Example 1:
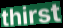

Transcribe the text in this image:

thirst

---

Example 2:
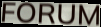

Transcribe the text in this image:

FORUM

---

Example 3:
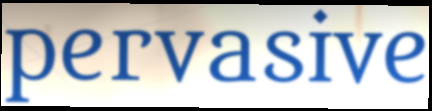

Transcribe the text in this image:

pervasive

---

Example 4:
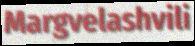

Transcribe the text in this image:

Margvelashvili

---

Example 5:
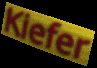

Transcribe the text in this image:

Kiefer